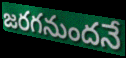
జరగనుందనే